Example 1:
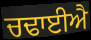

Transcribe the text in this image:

ਚਢਾਈਐ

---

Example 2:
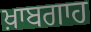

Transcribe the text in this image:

ਖ਼ਾਬਗਾਹ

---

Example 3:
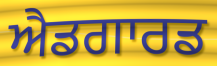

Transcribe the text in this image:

ਐਡਗਾਰਡ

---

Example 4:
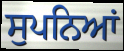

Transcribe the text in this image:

ਸੁਪਨਿਆਂ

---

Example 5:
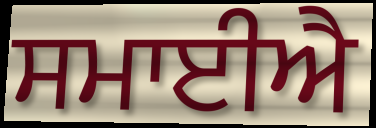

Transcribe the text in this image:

ਸਮਾਈਐ